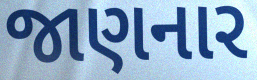
જાણનાર